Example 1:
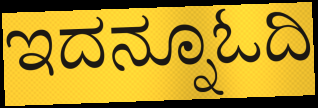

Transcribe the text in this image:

ಇದನ್ನೂಓದಿ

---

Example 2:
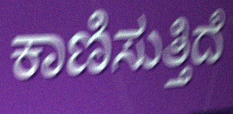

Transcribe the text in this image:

ಕಾಣಿಸುತ್ತಿದೆ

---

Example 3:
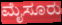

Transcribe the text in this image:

ಮೈಸೂರು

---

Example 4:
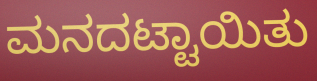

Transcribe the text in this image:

ಮನದಟ್ಟಾಯಿತು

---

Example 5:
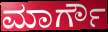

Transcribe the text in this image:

ಮಾರ್ಗೌ